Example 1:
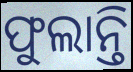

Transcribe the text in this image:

ଫୁଲାନ୍ତି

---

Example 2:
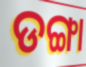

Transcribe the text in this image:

ଡଙ୍ଗା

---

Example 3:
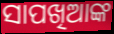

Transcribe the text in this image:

ସାପଖିଆଙ୍କ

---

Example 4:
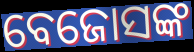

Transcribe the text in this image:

ବେଜୋସଙ୍କ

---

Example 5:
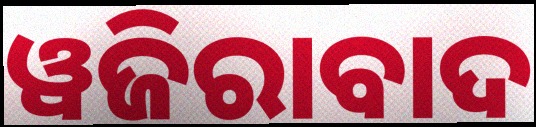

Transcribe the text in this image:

ୱଜିରାବାଦ